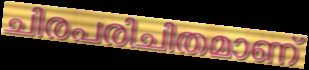
ചിരപരിചിതമാണ്